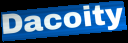
Dacoity